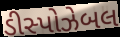
ડીસ્પોઝેબલ